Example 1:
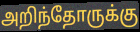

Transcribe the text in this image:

அறிந்தோருக்கு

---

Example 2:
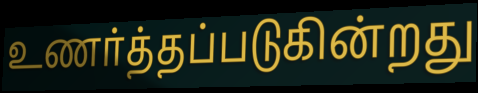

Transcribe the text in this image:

உணர்த்தப்படுகின்றது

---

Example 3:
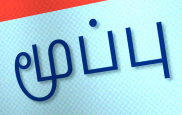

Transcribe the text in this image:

மூப்பு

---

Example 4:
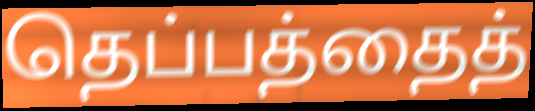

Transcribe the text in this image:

தெப்பத்தைத்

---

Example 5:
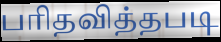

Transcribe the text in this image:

பரிதவித்தபடி